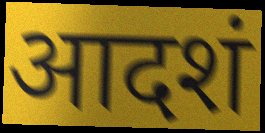
आदशं